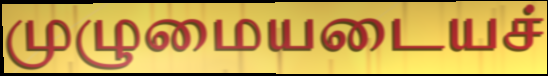
முழுமையடையச்